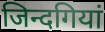
जिन्दगियां